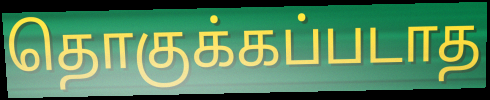
தொகுக்கப்படாத